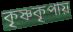
কৃষ্ণকৃপায়